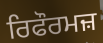
ਰਿਫੌਰਮਜ਼